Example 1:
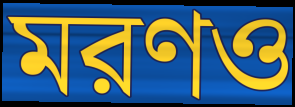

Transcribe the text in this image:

মরণও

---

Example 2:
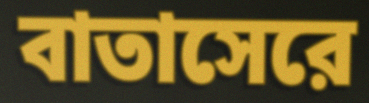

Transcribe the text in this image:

বাতাসেরে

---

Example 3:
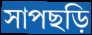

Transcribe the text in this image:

সাপছড়ি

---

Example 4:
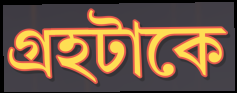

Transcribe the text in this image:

গ্রহটাকে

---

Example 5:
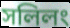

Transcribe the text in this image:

সলিলং